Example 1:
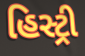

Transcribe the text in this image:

હિસ્ટ્રી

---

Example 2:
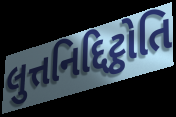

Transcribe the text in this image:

લુત્તનિદ્દિટ્ઠોતિ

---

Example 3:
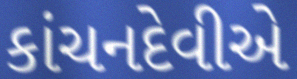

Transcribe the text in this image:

કાંચનદેવીએ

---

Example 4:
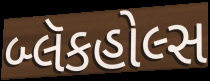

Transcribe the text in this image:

બ્લૅકહોલ્સ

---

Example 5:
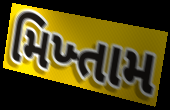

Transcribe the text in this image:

મિખ્તામ